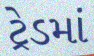
ટ્રેડમાં